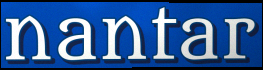
nantar